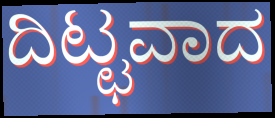
ದಿಟ್ಟವಾದ